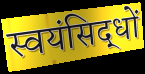
स्वयंसिद्धों